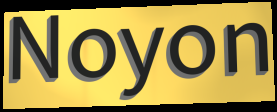
Noyon